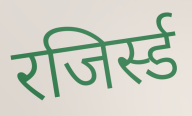
रजिर्स्ड